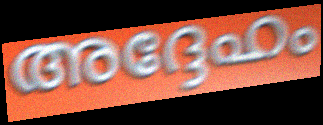
അദ്ദേഹം